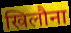
खिलौना